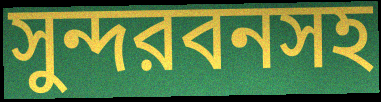
সুন্দরবনসহ